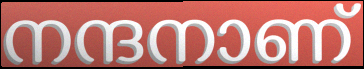
നന്ദനാണ്